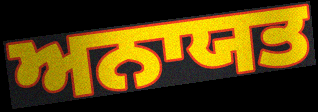
ਅਨਾਯਤ